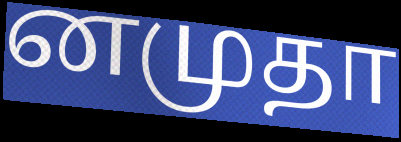
னமுதா